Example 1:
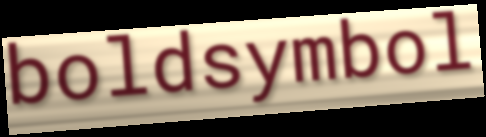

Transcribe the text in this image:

boldsymbol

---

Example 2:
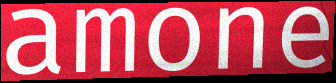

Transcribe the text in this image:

amone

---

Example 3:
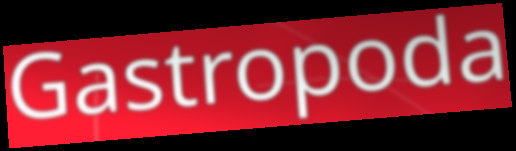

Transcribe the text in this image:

Gastropoda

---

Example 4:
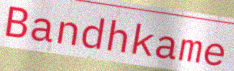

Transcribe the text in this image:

Bandhkame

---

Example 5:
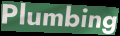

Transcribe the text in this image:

Plumbing